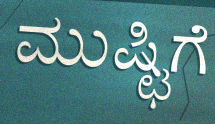
ಮುಷ್ಟಿಗೆ